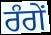
ਰੰਗੇਂ